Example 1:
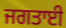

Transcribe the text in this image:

ਜਗਤਾਈ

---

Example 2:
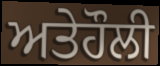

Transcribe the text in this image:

ਅਤੇਹੌਲੀ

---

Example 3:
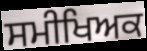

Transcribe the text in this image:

ਸਮੀਖਿਅਕ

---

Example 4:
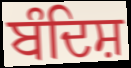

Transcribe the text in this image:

ਬੰਦਿਸ਼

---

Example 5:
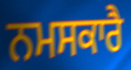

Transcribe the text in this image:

ਨਮਸਕਾਰੈ